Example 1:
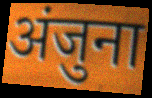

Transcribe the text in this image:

अंजुना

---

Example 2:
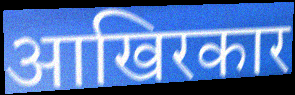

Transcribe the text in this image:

आखिरकार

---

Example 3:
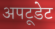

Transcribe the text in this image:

अपटूडेट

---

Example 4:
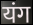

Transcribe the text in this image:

यंग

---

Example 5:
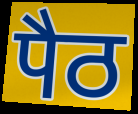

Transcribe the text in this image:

पैठ